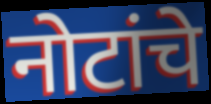
नोटांचे